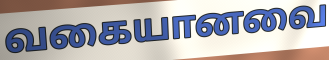
வகையானவை